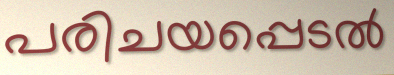
പരിചയപ്പെടൽ